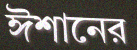
ঈশানের